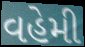
વહેમી